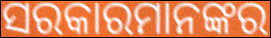
ସରକାରମାନଙ୍କର